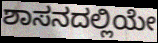
ಶಾಸನದಲ್ಲಿಯೇ